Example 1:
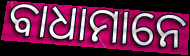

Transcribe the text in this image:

ବାଧାମାନେ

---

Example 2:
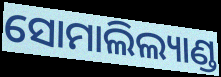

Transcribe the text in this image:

ସୋମାଲିଲ୍ୟାଣ୍ଡ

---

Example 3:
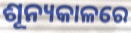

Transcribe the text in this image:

ଶୂନ୍ୟକାଳରେ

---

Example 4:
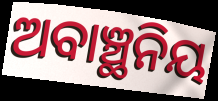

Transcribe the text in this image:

ଅବାଞ୍ଛନିୟ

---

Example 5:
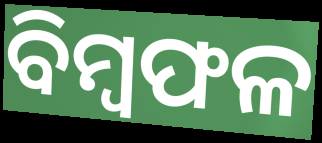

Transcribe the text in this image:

ବିମ୍ୱଫଳ